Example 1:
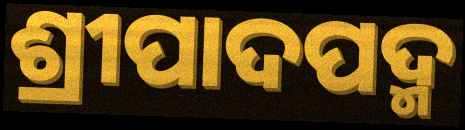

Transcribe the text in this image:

ଶ୍ରୀପାଦପଦ୍ମ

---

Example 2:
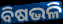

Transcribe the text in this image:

ବିଷଭଳି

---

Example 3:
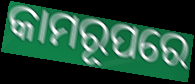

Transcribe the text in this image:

କାମରୂପରେ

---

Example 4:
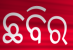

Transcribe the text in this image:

ଛବିର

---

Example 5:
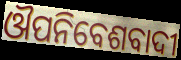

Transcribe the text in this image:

ଔପନିବେଶବାଦୀ